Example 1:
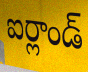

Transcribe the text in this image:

ఐర్లాండ్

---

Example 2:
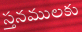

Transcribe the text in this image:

స్తనములకు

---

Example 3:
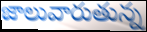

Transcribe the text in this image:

జాలువారుతున్న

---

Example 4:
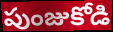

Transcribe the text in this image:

పుంజుకోడి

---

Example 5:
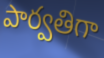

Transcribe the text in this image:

పార్వతిగా